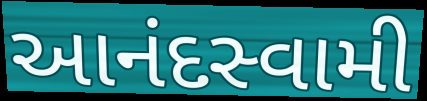
આનંદસ્વામી